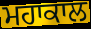
ਮਹਾਕਾਲ